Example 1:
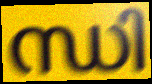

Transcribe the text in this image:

ന്ധി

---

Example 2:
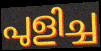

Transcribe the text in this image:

പുളിച്ച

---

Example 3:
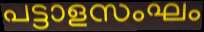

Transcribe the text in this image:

പട്ടാളസംഘം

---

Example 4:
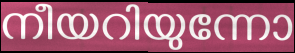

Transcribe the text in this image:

നീയറിയുന്നോ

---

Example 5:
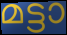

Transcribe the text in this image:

മട്ടാ